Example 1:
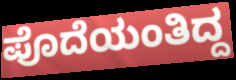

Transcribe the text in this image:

ಪೊದೆಯಂತಿದ್ದ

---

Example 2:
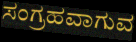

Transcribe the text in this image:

ಸಂಗ್ರಹವಾಗುವ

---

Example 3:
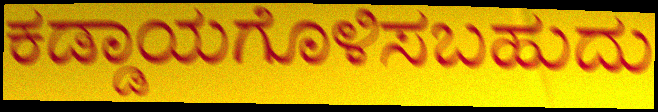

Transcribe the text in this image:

ಕಡ್ಡಾಯಗೊಳಿಸಬಹುದು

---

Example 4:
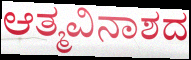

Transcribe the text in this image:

ಆತ್ಮವಿನಾಶದ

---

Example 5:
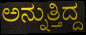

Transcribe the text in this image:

ಅನ್ನುತ್ತಿದ್ದ